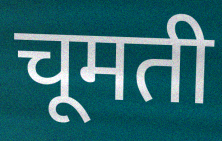
चूमती